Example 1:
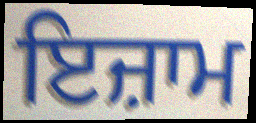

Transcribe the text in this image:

ਇਜ਼ਾਮ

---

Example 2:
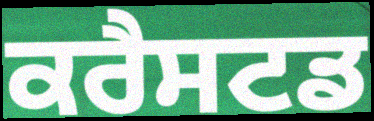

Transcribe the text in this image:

ਕਰੈਸਟਡ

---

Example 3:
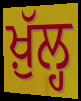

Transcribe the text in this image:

ਖ਼ੁੱਲ੍ਹ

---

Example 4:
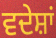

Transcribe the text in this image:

ਵਦੇਸ਼ਾਂ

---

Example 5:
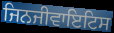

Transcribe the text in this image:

ਜਿਨਜੀਵਾਇਟਿਸ